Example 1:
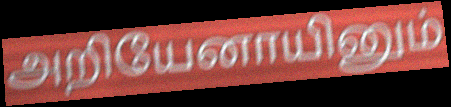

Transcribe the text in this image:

அறியேனாயினும்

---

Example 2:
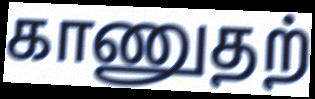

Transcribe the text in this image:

காணுதற்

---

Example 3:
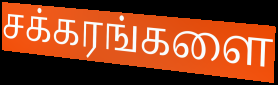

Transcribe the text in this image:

சக்கரங்களை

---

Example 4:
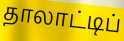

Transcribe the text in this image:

தாலாட்டிப்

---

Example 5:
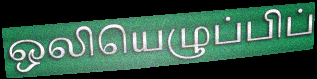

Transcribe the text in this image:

ஒலியெழுப்பிப்